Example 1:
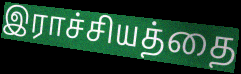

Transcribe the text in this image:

இராச்சியத்தை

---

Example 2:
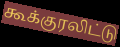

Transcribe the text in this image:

கூக்குரலிட்டு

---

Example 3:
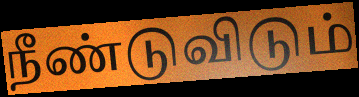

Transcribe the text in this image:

நீண்டுவிடும்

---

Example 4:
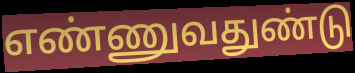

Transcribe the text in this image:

எண்ணுவதுண்டு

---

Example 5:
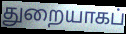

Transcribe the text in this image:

துறையாகப்